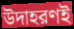
উদাহরণই